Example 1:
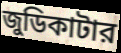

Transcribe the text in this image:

জুডিকাটার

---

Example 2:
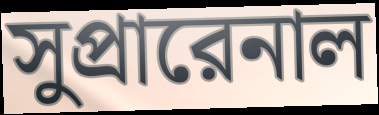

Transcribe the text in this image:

সুপ্রারেনাল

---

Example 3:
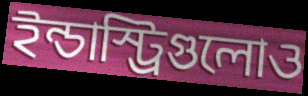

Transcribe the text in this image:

ইন্ডাস্ট্রিগুলোও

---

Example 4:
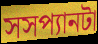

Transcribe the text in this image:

সসপ্যানটা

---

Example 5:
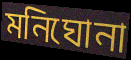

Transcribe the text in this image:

মনিঘোনা